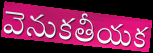
వెనుకతీయక